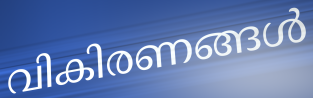
വികിരണങ്ങൾ